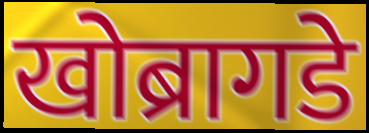
खोब्रागडे